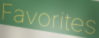
Favorites